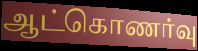
ஆட்கொணர்வு